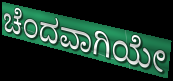
ಚೆಂದವಾಗಿಯೇ